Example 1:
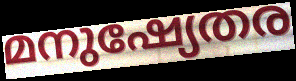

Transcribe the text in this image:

മനുഷ്യേതര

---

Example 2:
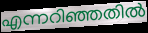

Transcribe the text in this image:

എന്നറിഞ്ഞതിൽ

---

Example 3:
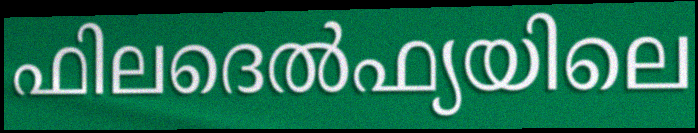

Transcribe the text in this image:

ഫിലദെൽഫ്യയിലെ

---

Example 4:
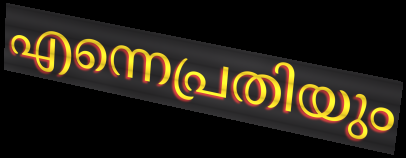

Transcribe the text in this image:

എന്നെപ്രതിയും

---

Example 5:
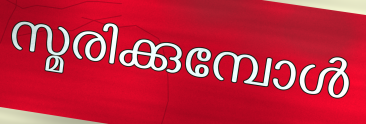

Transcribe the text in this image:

സ്മരിക്കുമ്പോൾ